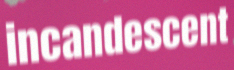
incandescent